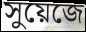
সুয়েজে